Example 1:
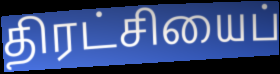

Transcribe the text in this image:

திரட்சியைப்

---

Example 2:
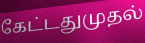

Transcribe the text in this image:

கேட்டதுமுதல்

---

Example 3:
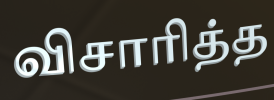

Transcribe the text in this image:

விசாரித்த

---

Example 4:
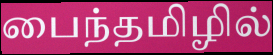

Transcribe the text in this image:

பைந்தமிழில்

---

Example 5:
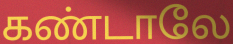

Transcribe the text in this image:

கண்டாலே